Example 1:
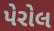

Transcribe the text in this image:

પેરોલ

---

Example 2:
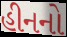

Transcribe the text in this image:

હીનનો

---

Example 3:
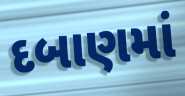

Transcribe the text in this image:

દબાણમાં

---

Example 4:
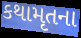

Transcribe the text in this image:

કથામૃતના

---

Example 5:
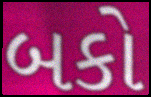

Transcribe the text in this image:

બકો